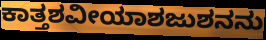
ಕಾತ್ತಶವೀಯಾಶಜುಶನನು